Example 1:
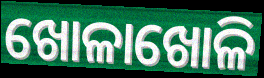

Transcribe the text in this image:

ଖୋଳାଖୋଳି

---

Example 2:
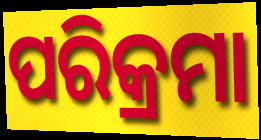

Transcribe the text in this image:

ପରିକ୍ରମା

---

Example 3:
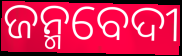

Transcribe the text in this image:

ଜନ୍ମବେଦୀ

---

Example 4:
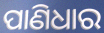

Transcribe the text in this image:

ପାଣିଧାର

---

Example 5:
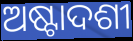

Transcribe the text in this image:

ଅଷ୍ଟାଦଶୀ